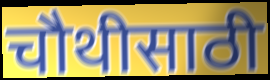
चौथीसाठी